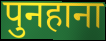
पुनहाना